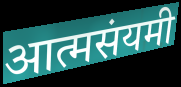
आत्मसंयमी